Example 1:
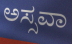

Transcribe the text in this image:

ಅಸ್ಸವಾ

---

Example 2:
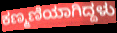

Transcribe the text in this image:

ಕಣ್ಮಣಿಯಾಗಿದ್ದಳು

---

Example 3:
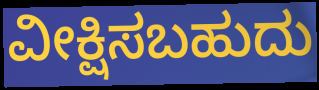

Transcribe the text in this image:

ವೀಕ್ಷಿಸಬಹುದು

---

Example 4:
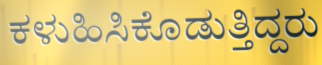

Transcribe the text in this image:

ಕಳುಹಿಸಿಕೊಡುತ್ತಿದ್ದರು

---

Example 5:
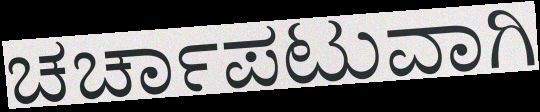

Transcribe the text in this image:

ಚರ್ಚಾಪಟುವಾಗಿ